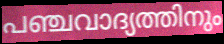
പഞ്ചവാദ്യത്തിനും